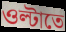
ওল্টাতে